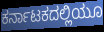
ಕರ್ನಾಟಕದಲ್ಲಿಯೂ